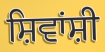
ਸ਼ਿਵਾਂਸ਼ੀ